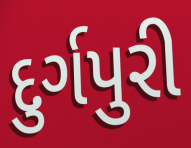
દુર્ગપુરી